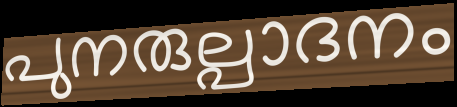
പുനരുല്പാദനം